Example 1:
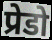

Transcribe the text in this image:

प्रेडो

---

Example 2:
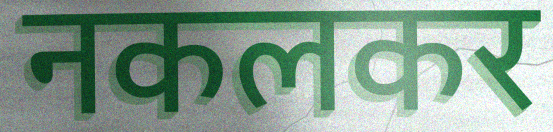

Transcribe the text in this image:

नकलकर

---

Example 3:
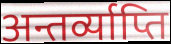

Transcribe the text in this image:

अन्तर्व्याप्ति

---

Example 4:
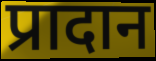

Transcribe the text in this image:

प्रादान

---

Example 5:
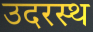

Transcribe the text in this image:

उदरस्थ